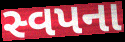
સ્વપના